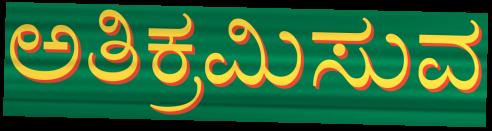
ಅತಿಕ್ರಮಿಸುವ